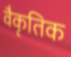
वैकृतिक